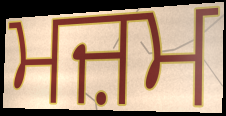
ਮਜ਼ਮ